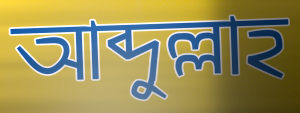
আব্দুল্লাহ